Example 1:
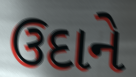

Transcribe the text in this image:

ઉદાને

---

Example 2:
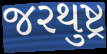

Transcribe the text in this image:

જરથુષ્ટ્ર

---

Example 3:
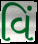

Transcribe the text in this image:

વિં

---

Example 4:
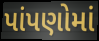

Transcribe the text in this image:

પાંપણોમાં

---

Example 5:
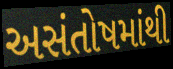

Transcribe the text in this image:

અસંતોષમાંથી